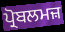
ਪ੍ਰੋਬਲਮਜ਼